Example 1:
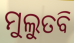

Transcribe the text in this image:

ମୁଲୁତବି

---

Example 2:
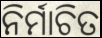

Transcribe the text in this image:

ନିର୍ମାଚିତ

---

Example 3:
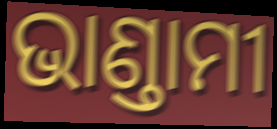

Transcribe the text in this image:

ଭାଣ୍ଡାମୀ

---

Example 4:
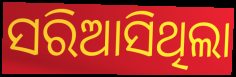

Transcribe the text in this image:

ସରିଆସିଥିଲା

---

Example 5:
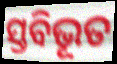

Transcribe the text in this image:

ସ୍ତବିଭୂତ